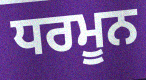
ਧਰਮੂਨ